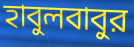
হাবুলবাবুর